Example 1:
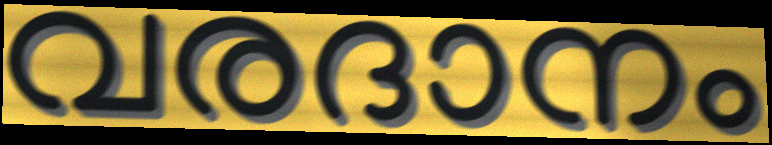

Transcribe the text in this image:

വരദാനം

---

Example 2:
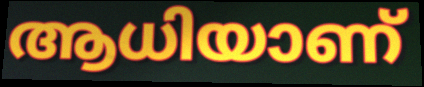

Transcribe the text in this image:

ആധിയാണ്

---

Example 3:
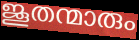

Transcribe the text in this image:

ജൂതന്മാരും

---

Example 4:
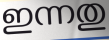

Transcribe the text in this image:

ഇന്നതു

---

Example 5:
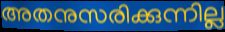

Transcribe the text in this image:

അതനുസരിക്കുന്നില്ല